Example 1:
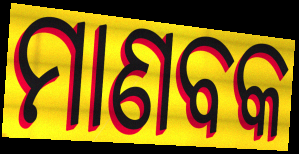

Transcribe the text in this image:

ମାଣବକ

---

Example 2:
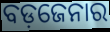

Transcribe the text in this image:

ବଡ଼ଜେନାର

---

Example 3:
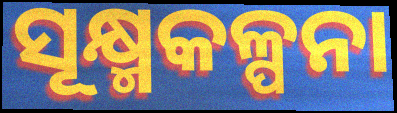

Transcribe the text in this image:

ସୂକ୍ଷ୍ମକଳ୍ପନା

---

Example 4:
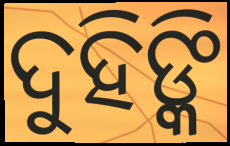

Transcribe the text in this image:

ଦୁହିଙ୍କି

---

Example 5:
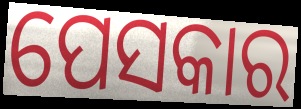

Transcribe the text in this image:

ପେସକାର